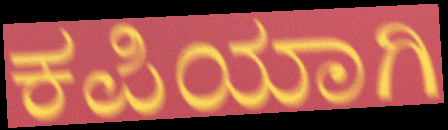
ಕಪಿಯಾಗಿ